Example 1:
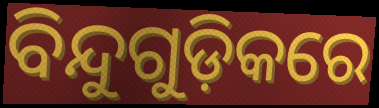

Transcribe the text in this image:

ବିନ୍ଦୁଗୁଡ଼ିକରେ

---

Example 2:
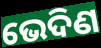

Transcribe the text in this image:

ଭେଦିଣ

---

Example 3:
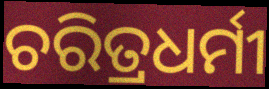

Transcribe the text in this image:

ଚରିତ୍ରଧର୍ମୀ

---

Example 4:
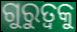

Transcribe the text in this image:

ଗୁରୁତ୍ୱକୁ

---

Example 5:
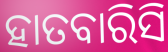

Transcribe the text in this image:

ହାତବାରିସି